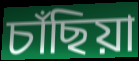
চাঁছিয়া